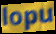
lopu